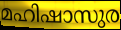
മഹിഷാസുര